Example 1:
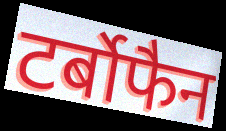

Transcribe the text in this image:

टर्बोफैन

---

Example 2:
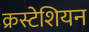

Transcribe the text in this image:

क्रस्टेशियन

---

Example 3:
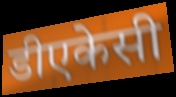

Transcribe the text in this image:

डीएकेसी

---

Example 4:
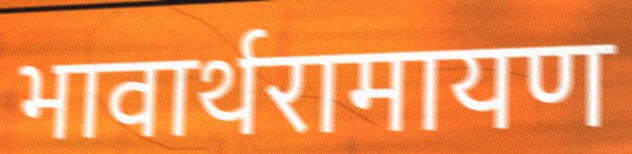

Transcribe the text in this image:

भावार्थरामायण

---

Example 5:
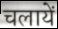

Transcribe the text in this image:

चलायें